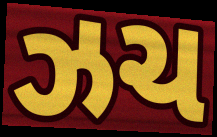
ઝચ